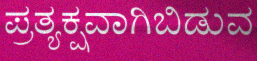
ಪ್ರತ್ಯಕ್ಷವಾಗಿಬಿಡುವ